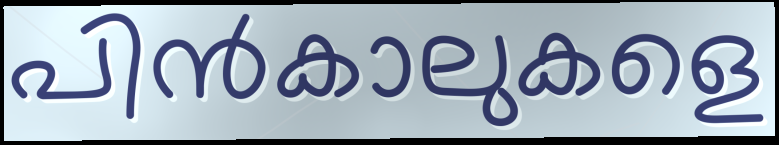
പിൻകാലുകളെ